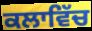
ਕਲਾਵਿੱਚ